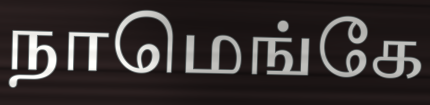
நாமெங்கே